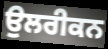
ਉਲਰੀਕਨ